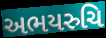
અભયરુચિ